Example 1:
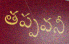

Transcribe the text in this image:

తప్పవనీ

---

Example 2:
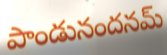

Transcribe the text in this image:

పాండునందనమ్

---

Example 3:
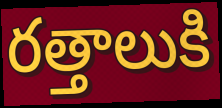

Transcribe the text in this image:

రత్తాలుకి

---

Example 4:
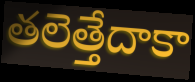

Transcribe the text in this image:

తలెత్తేదాకా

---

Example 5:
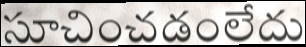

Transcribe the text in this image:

సూచించడంలేదు